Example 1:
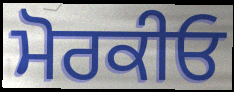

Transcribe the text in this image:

ਮੋਰਕੀਓ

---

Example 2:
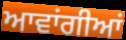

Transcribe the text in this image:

ਆਵਾਂਗੀਆਂ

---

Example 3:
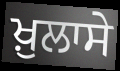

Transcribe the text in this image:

ਖ਼ੁਲਾਸੇ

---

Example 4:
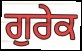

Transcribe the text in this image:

ਗੁਰੇਕ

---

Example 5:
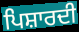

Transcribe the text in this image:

ਪਿਸ਼ਾਰਦੀ